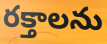
రక్తాలను